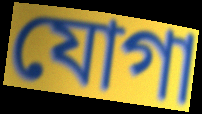
যোগা